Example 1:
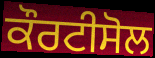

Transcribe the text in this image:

ਕੌਰਟੀਸੋਲ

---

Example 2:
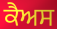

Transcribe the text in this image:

ਕੈਅਸ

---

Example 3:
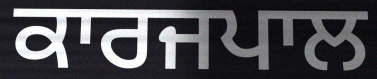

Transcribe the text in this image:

ਕਾਰਜਪਾਲ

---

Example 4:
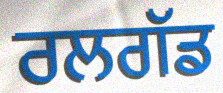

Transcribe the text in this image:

ਰਲਗੱਡ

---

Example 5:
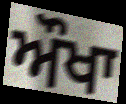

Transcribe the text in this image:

ਔਖਾ